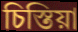
চিস্তিয়া